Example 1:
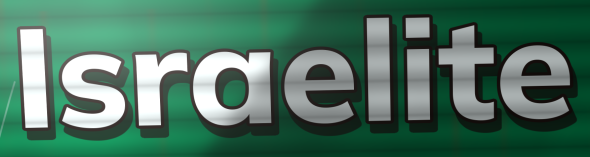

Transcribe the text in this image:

Israelite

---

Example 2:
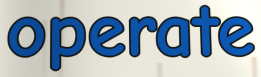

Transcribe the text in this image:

operate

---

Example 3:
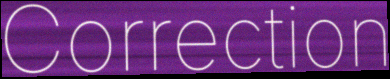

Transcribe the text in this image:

Correction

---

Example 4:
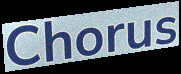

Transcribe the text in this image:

Chorus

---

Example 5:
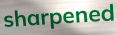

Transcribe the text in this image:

sharpened